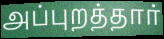
அப்புறத்தார்